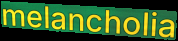
melancholia